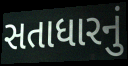
સતાધારનું